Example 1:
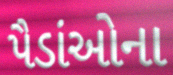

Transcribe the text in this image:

પૈડાંઓના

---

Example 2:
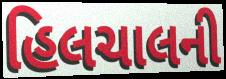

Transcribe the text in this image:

હિલચાલની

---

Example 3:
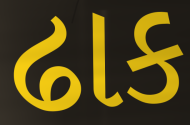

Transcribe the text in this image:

ઢાક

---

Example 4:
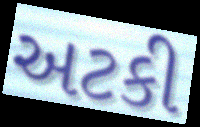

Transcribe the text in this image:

અટકી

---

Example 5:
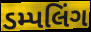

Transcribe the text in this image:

ડમ્પલિંગ